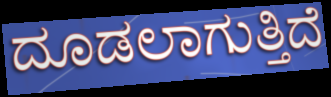
ದೂಡಲಾಗುತ್ತಿದೆ